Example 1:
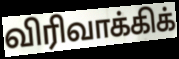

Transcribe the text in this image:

விரிவாக்கிக்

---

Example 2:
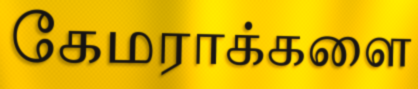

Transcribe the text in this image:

கேமராக்களை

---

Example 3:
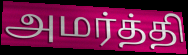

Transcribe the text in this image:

அமர்த்தி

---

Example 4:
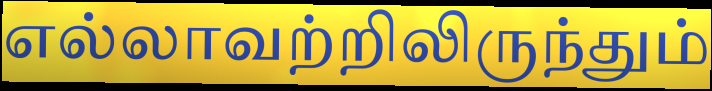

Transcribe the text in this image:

எல்லாவற்றிலிருந்தும்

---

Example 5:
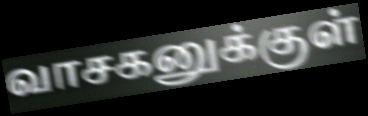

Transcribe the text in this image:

வாசகனுக்குள்